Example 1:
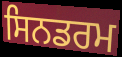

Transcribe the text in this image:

ਸਿਨਡਰਮ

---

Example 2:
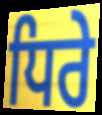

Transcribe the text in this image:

ਧਿਰੇ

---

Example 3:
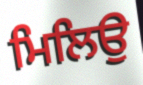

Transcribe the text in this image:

ਮਿਲਿਉ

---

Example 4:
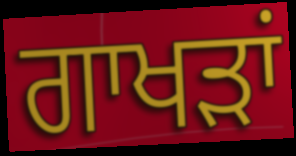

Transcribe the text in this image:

ਗਾਖੜਾਂ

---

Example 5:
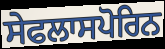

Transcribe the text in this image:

ਸੇਫਲਾਸਪੋਰਿਨ